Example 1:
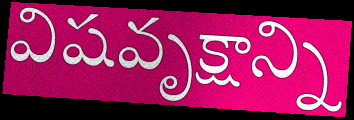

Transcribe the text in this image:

విషవృక్షాన్ని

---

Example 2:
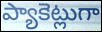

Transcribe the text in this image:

ప్యాకెట్లుగా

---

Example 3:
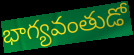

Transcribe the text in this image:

భాగ్యవంతుడో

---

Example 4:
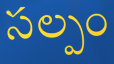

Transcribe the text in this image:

సల్పం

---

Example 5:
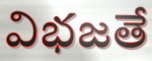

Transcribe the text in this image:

విభజతే